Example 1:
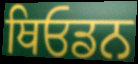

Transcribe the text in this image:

ਥਿਓਡਨ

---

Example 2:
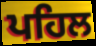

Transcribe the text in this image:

ਪਹਿਲ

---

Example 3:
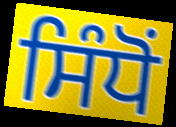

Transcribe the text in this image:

ਸਿੰਧੋਂ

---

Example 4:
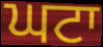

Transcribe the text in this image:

ਘਟਾ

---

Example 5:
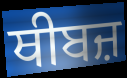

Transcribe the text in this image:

ਥੀਬਜ਼